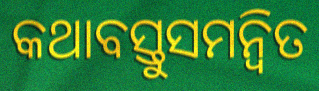
କଥାବସ୍ତୁସମନ୍ୱିତ